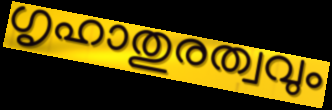
ഗൃഹാതുരത്വവും